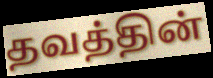
தவத்தின்